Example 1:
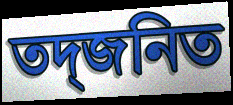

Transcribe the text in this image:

তদ্জনিত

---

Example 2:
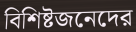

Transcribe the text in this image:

বিশিষ্টজনেদের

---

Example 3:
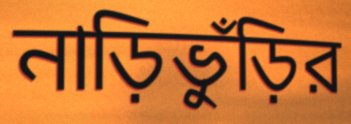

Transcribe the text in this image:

নাড়িভুঁড়ির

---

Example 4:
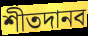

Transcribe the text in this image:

শীতদানব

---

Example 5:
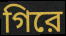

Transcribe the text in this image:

গিরে